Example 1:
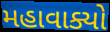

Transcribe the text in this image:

મહાવાક્યો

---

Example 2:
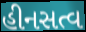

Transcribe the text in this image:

હીનસત્વ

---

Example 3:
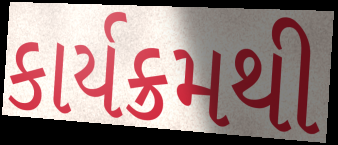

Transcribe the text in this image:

કાર્યક્રમથી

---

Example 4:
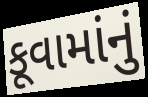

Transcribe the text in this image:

કૂવામાંનું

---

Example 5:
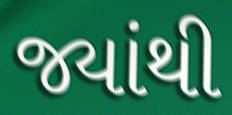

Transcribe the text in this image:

જ્યાંથી